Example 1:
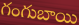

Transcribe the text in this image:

గంగుబాయి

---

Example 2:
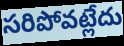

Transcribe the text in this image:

సరిపోవట్లేదు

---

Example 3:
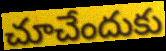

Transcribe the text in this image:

చూచేందుకు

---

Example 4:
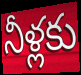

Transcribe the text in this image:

నీళ్లకు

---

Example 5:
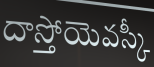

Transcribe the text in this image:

దాస్తోయెవస్కీ